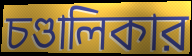
চণ্ডালিকার